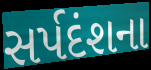
સર્પદંશના